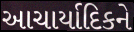
આચાર્યાદિકને